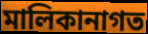
মালিকানাগত